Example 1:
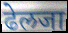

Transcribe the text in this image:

ढेलजा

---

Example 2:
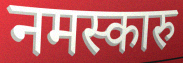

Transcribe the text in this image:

नमस्कारु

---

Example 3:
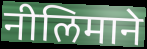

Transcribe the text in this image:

नीलिमाने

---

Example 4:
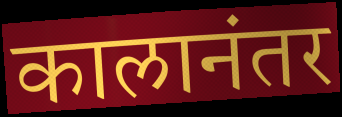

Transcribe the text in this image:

कालानंतर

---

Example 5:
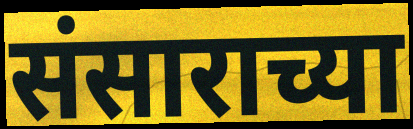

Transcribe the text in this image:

संसाराच्या